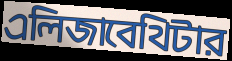
এলিজাবেথিটার